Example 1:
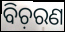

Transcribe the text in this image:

ବିଚ଼ରଣ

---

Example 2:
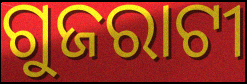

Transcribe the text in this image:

ଗୁଜରାଟୀ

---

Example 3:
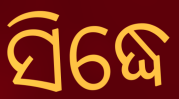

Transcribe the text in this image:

ସିଦ୍ଧେ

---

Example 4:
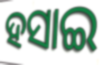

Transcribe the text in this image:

ହସାଇ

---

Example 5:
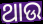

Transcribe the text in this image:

ଥାଉ